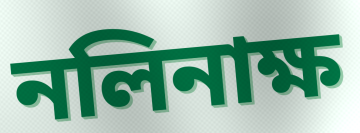
নলিনাক্ষ